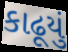
કાઢૂયું